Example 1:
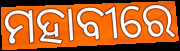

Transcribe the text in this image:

ମହାବୀରେ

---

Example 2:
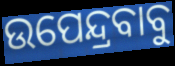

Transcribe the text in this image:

ଉପେନ୍ଦ୍ରବାବୁ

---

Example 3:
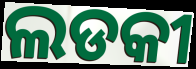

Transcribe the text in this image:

ଲଡକୀ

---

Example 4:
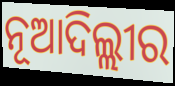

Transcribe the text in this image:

ନୂଆଦିଲ୍ଲୀର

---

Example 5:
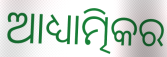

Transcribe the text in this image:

ଆଧ୍ୟାତ୍ମିକର